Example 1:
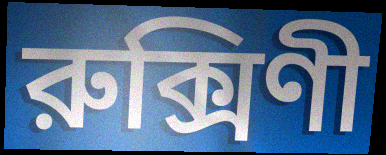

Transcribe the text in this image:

রুক্সিণী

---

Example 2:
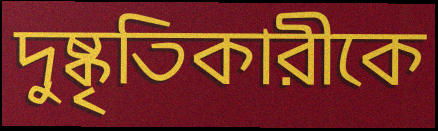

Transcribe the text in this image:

দুষ্কৃতিকারীকে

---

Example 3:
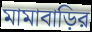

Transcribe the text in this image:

মামাবাড়ির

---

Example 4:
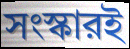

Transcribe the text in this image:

সংস্কারই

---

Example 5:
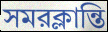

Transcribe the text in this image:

সমরক্লান্তি